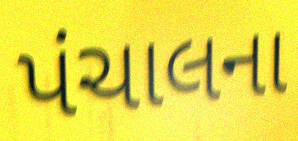
પંચાલના